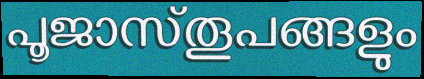
പൂജാസ്‌തൂപങ്ങളും